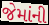
જેમાંની